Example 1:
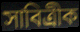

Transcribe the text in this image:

সাবিত্ৰীক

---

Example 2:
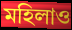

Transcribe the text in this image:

মহিলাও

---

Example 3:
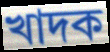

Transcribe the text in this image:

খাদক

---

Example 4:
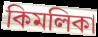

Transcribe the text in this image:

কিমলিকা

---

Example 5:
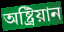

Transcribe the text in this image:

অষ্ট্ৰিয়ান